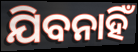
ଯିବନାହିଁ